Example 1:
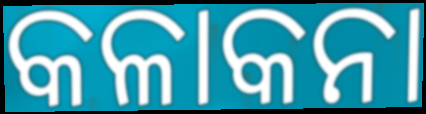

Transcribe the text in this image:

କଳାକନା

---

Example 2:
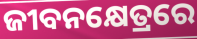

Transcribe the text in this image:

ଜୀବନକ୍ଷେତ୍ରରେ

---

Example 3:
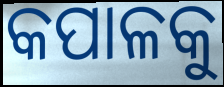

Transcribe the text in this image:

କପାଳକୁ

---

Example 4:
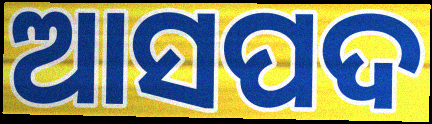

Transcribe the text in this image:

ଆସପଦ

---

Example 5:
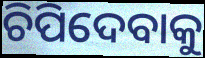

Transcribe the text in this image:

ଚିପିଦେବାକୁ